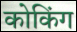
कोकिंग